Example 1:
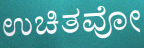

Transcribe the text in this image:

ಉಚಿತವೋ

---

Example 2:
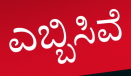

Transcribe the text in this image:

ಎಬ್ಬಿಸಿವೆ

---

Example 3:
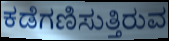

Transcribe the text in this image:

ಕಡೆಗಣಿಸುತ್ತಿರುವ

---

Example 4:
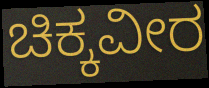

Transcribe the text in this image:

ಚಿಕ್ಕವೀರ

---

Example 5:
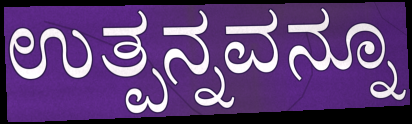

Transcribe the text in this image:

ಉತ್ಪನ್ನವನ್ನೂ